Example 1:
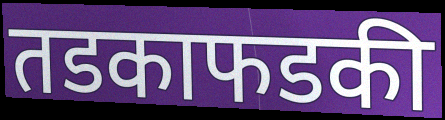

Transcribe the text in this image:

तडकाफडकी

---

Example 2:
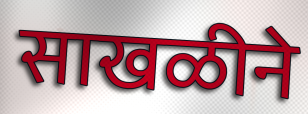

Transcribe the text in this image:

साखळीने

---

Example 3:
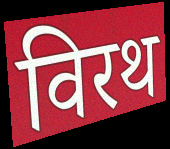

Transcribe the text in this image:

विरथ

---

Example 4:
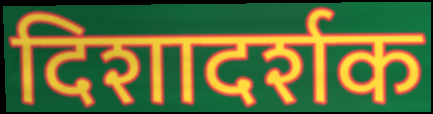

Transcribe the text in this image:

दिशादर्शक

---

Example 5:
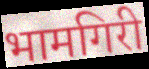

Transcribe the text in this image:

भामगिरी